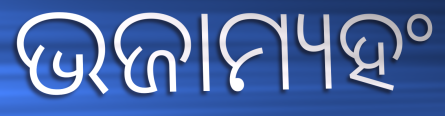
ଭଜାମ୍ୟହଂ